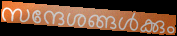
സന്ദേശങ്ങൾക്കും